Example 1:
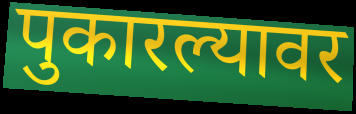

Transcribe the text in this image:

पुकारल्यावर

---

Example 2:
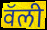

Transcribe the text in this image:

वॅली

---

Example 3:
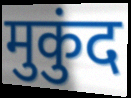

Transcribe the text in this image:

मुकुंद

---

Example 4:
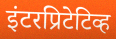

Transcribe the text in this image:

इंटरप्रिटेटिव्ह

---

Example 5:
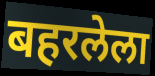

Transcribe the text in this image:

बहरलेला